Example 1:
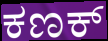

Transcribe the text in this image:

ಕಣಕ್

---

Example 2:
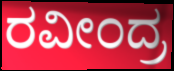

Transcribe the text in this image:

ರವೀಂದ್ರ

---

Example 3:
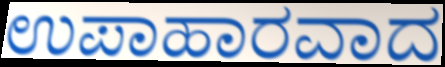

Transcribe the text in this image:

ಉಪಾಹಾರವಾದ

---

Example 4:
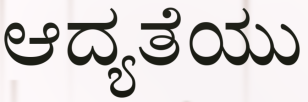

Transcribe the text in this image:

ಆದ್ಯತೆಯು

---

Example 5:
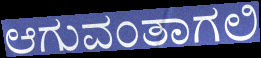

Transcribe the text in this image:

ಆಗುವಂತಾಗಲಿ